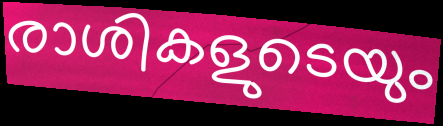
രാശികളുടെയും